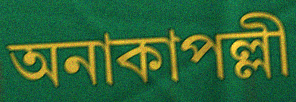
অনাকাপল্লী